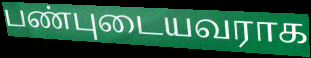
பண்புடையவராக